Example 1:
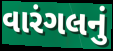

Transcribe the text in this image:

વારંગલનું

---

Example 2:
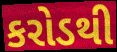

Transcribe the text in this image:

કરોડથી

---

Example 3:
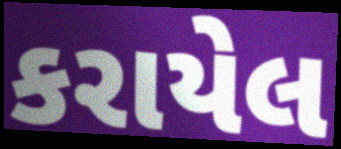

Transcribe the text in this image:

કરાયેલ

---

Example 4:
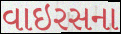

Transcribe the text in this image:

વાઇરસના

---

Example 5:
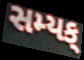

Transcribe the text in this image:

સમ્યક્